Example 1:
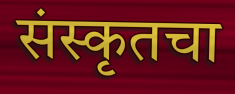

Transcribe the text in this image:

संस्कृतचा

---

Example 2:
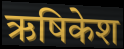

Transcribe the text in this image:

ऋषिकेश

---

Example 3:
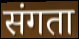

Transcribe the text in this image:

संगता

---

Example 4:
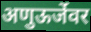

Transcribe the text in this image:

अणुऊर्जेवर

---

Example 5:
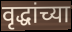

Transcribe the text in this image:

वृद्धांच्या